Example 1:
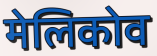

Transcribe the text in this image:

मेलिकोव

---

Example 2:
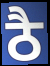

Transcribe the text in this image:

ठै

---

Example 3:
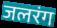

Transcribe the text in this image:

जलरंग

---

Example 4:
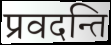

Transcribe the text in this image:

प्रवदन्ति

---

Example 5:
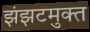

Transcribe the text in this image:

झंझटमुक्त